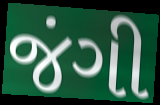
જંગી